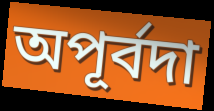
অপূর্বদা